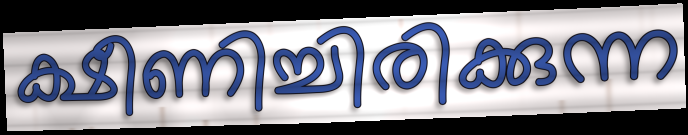
ക്ഷീണിച്ചിരിക്കുന്ന